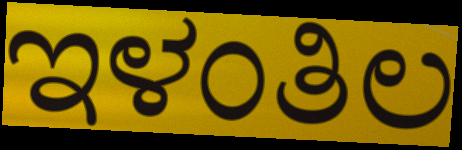
ಇಳಂತಿಲ